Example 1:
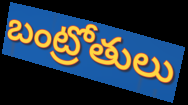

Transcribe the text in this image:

బంట్రోతులు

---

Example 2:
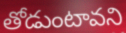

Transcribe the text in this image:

తోడుంటావని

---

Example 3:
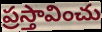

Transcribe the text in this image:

ప్రస్తావించు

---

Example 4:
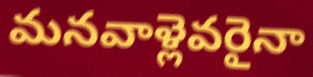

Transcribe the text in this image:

మనవాళ్లెవరైనా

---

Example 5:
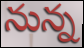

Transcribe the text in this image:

నున్న